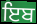
ਇਬ